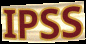
IPSS